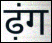
ढ़ंग